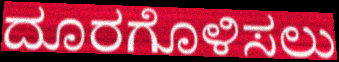
ದೂರಗೊಳಿಸಲು